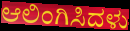
ಆಲಿಂಗಿಸಿದಳು